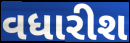
વધારીશ